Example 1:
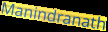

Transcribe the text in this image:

Manindranath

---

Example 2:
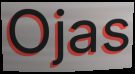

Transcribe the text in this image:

Ojas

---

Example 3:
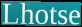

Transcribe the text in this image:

Lhotse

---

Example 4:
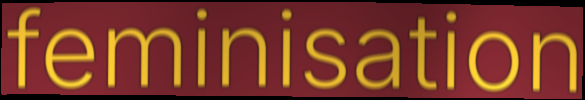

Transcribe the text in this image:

feminisation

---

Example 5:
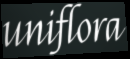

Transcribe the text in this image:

uniflora